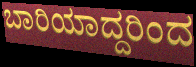
ಬಾರಿಯಾದ್ದರಿಂದ